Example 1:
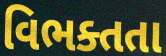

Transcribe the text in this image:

વિભક્તતા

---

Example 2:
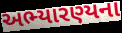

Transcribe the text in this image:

અભ્યારણ્યના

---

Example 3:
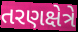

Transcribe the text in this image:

તરણક્ષેત્રે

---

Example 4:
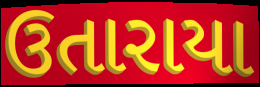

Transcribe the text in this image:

ઉતારાયા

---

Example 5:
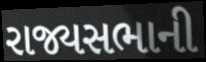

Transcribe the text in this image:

રાજ્યસભાની